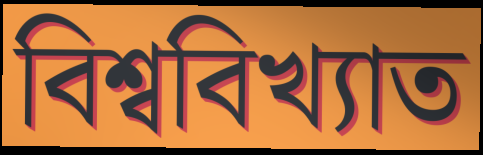
বিশ্ববিখ্যাত